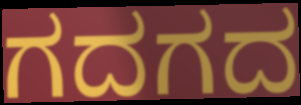
ಗದಗದ